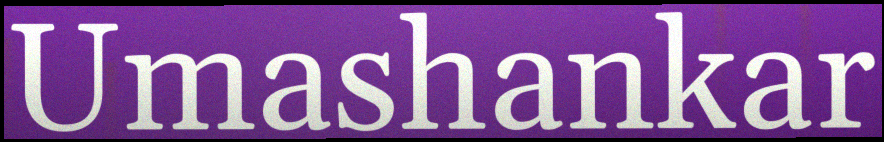
Umashankar